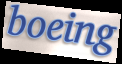
boeing